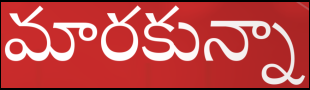
మారకున్నా